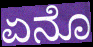
ಏನೊ